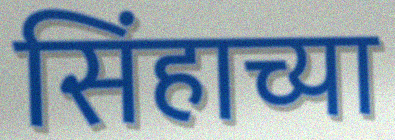
सिंहाच्या